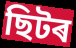
ছিটৰ